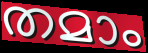
തമാം